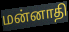
மன்னாதி